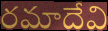
రమాదేవి